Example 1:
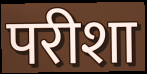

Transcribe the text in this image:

परीशा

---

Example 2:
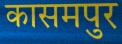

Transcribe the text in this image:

कासमपुर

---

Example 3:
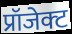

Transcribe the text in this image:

प्रॉजेक्‍ट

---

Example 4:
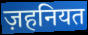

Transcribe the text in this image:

ज़हनियत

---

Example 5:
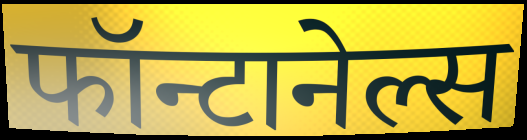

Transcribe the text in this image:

फॉन्टानेल्स